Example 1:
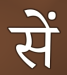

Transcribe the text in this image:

सें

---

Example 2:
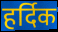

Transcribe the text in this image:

हर्दिक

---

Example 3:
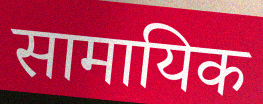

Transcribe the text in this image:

सामायिक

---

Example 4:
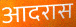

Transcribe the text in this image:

आदरास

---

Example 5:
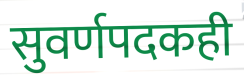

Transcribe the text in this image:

सुवर्णपदकही